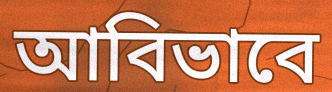
আবিভাবে